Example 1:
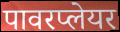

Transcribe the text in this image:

पावरप्लेयर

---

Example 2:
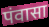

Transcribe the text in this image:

पंवासा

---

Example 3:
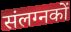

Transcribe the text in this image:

संलग्नकों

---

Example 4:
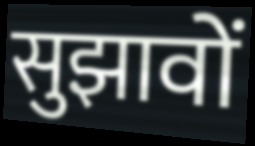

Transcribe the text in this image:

सुझावों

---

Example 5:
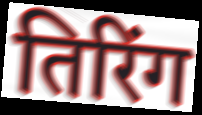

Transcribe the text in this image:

तिरिंग